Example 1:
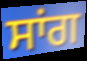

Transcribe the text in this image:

ਸਾਂਗ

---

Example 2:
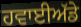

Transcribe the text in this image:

ਹਵਾਈਅੱਡੇ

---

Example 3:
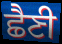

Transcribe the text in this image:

ਛੈਣੀ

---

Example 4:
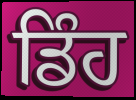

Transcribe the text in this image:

ਡਿੰਹ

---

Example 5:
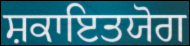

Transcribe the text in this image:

ਸ਼ਕਾਇਤਯੋਗ